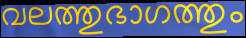
വലത്തുഭാഗത്തും